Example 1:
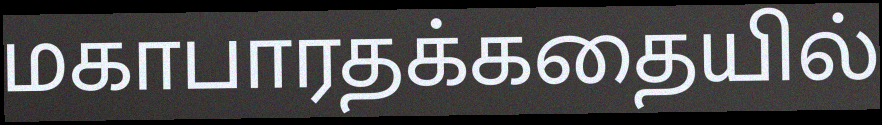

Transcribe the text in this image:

மகாபாரதக்கதையில்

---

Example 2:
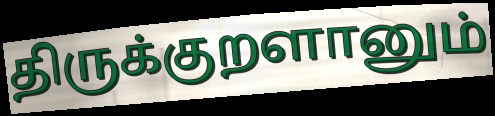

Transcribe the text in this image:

திருக்குறளானும்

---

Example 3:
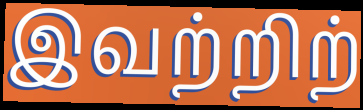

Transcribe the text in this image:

இவற்றிற்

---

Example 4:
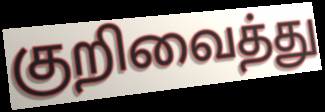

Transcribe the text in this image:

குறிவைத்து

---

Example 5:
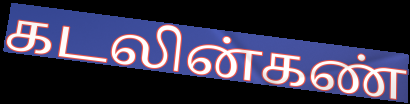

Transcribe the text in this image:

கடலின்கண்